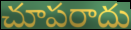
చూపరాదు